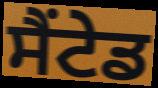
ਸੈਂਟੇਡ